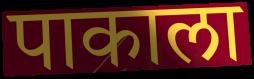
पाकाला